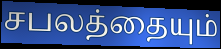
சபலத்தையும்